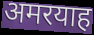
अमरयाह